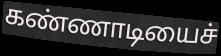
கண்ணாடியைச்